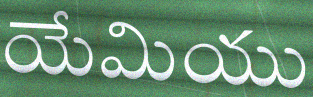
యేమియు